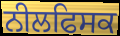
ਨੀਲਫਿਸਕ